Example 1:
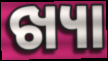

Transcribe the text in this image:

ଖ୍ୟା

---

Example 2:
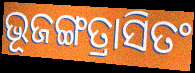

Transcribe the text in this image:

ଭୂଜଙ୍ଗତ୍ରାସିତଂ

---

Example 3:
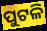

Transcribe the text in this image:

ପୁଟଳି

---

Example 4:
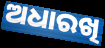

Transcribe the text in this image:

ଅଧାରଖି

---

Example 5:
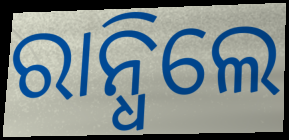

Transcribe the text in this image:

ରାନ୍ଧିଲେ